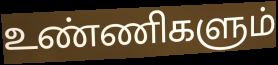
உண்ணிகளும்